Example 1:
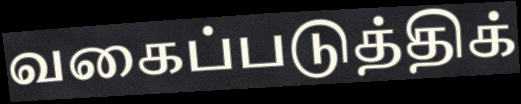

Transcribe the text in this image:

வகைப்படுத்திக்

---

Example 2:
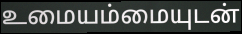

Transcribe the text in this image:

உமையம்மையுடன்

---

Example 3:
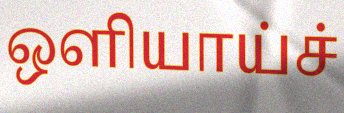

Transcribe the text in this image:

ஒளியாய்ச்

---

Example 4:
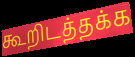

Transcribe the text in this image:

கூறிடத்தக்க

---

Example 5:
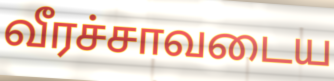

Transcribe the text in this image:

வீரச்சாவடைய